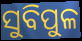
ସୁବିପୁଳ